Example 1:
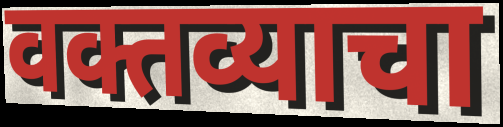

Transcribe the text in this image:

वक्तव्याचा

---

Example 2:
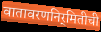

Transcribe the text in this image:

वातावरणनिर्मितीची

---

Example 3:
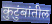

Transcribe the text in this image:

कुटुंबांतील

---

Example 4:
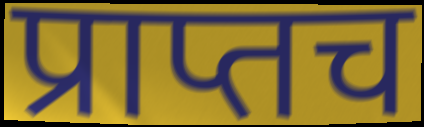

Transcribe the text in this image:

प्राप्तच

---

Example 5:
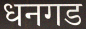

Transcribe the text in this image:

धनगड